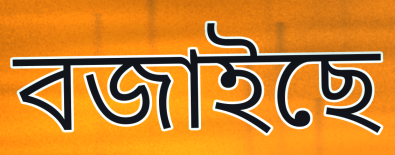
বজাইছে